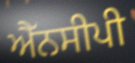
ਐੱਨਸੀਪੀ